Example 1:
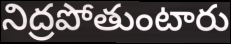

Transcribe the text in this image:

నిద్రపోతుంటారు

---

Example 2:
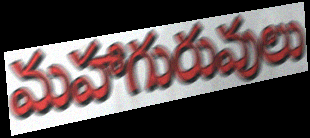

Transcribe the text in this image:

మహాగురువులు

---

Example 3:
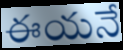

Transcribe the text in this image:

ఈయనే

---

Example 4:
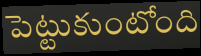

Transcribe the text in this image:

పెట్టుకుంటోంది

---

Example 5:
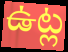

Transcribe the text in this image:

ఉట్ల